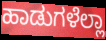
ಹಾಡುಗಳೆಲ್ಲಾ